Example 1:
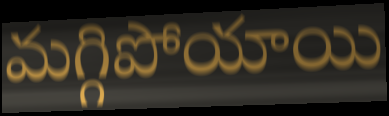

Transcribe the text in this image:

మగ్గిపోయాయి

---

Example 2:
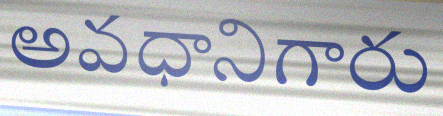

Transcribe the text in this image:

అవధానిగారు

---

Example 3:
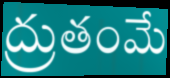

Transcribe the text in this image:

ద్రుతంమే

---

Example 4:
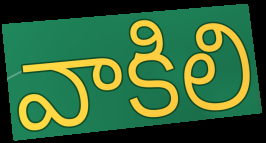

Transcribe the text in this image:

వాకిలి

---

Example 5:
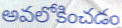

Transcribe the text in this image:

అవలోకించడం